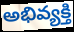
అభివ్యక్తి